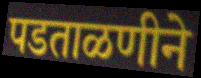
पडताळणीने